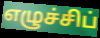
எழுச்சிப்